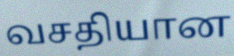
வசதியான